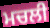
ਮਚਲੀ